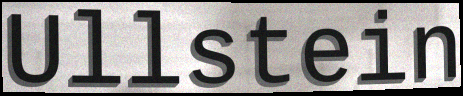
Ullstein